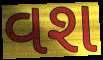
વશ